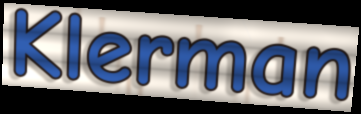
Klerman